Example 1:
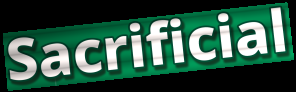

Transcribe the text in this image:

Sacrificial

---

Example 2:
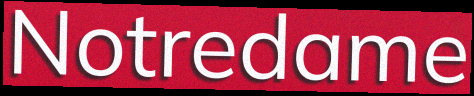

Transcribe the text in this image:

Notredame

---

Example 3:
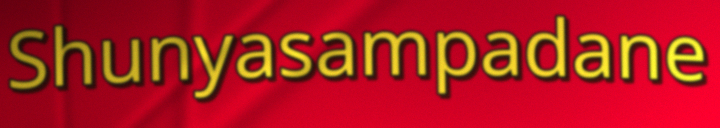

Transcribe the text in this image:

Shunyasampadane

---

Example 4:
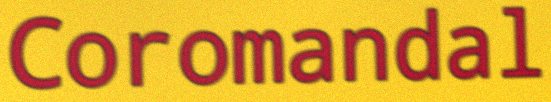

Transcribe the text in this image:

Coromandal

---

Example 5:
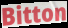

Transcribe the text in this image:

Bitton